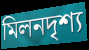
মিলনদৃশ্য